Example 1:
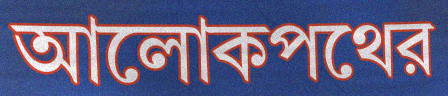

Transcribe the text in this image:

আলোকপথের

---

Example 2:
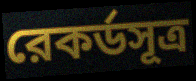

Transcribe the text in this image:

রেকর্ডসূত্র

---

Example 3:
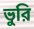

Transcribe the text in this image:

ভুরি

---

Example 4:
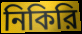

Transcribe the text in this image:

নিকিরি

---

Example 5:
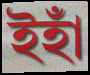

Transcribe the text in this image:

ইহাঁ